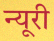
न्यूरी